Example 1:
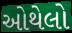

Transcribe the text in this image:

ઓથેલો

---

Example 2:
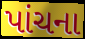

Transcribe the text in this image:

પાંચના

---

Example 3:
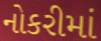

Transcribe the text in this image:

નોકરીમાં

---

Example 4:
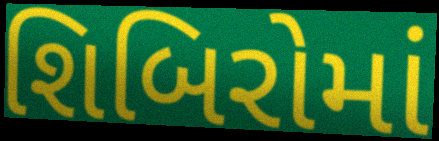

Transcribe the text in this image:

શિબિરોમાં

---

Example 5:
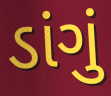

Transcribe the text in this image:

ડાંગું